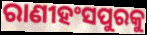
ରାଣୀହଂସପୁରକୁ